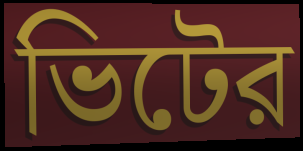
ভিটের